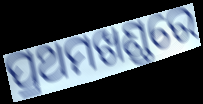
ପ୍ରଥମଖଣ୍ଡରେ